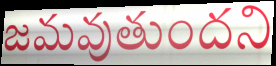
జమవుతుందని